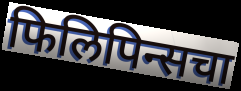
फिलिपिन्सचा